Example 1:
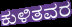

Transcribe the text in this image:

ಕುಳಿತವರ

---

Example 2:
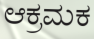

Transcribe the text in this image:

ಆಕ್ರಮಕ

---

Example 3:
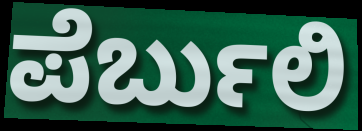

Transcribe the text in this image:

ಪೆರ್ಬುಲಿ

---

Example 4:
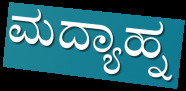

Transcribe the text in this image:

ಮದ್ಯಾಹ್ನ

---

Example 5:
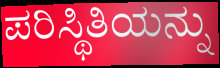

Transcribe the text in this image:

ಪರಿಸ್ಥಿತಿಯನ್ನು